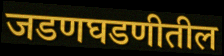
जडणघडणीतील